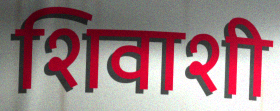
शिवाशी